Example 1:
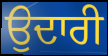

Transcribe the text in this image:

ਉਦਾਰੀ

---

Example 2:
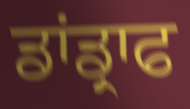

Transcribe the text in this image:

ਡਾਂਡ੍ਰਾਫ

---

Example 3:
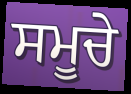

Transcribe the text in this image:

ਸਮੂਚੇ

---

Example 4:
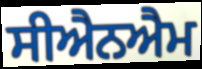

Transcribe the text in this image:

ਸੀਐਨਐਮ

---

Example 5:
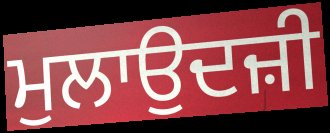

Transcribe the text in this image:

ਮੁਲਾਉਦਜ਼ੀ